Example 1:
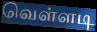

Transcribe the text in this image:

வெள்ளடி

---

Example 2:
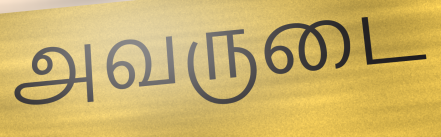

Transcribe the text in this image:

அவருடை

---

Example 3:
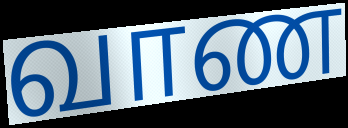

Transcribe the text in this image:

வாண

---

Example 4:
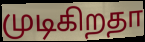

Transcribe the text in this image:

முடிகிறதா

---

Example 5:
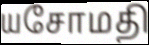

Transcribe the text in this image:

யசோமதி